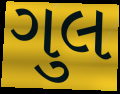
ગુલ